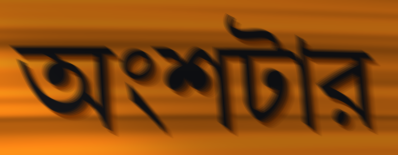
অংশটার